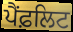
ਪੈਂਫ਼ਲਿਟ